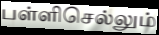
பள்ளிசெல்லும்